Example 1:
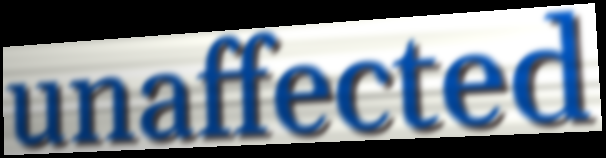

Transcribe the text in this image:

unaffected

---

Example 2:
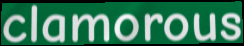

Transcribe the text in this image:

clamorous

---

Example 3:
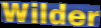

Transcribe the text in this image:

Wilder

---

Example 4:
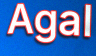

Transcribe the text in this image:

Agal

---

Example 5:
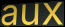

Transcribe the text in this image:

aux